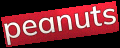
peanuts